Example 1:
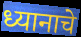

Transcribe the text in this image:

ध्यानाचे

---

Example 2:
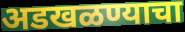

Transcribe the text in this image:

अडखळण्याचा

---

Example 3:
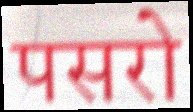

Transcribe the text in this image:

पसरो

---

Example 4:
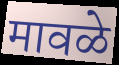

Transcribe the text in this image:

मावळे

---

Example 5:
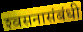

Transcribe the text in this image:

श्वसनासंबंधी